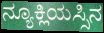
ನ್ಯೂಕ್ಲಿಯಸ್ಸಿನ